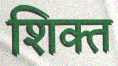
शिक्त